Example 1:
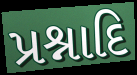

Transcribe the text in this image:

પ્રશ્નાદિ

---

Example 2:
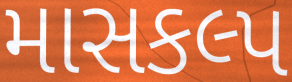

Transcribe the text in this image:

માસકલ્પ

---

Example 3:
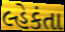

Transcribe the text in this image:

લ્હેકંતા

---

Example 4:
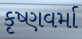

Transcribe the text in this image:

કૃષ્ણવર્મા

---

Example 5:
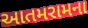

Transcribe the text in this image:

આતમરામના